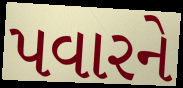
પવારને